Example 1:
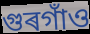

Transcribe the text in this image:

গুৰগাঁও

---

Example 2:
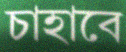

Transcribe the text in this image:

চাহাবে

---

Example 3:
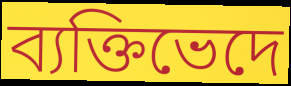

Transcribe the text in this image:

ব্যক্তিভেদে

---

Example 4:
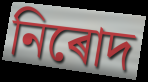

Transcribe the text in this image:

নিৰোদ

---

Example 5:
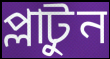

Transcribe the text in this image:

প্লাটুন